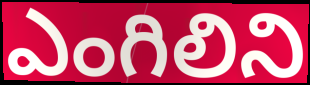
ఎంగిలిని